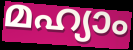
മഹ്യാം